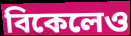
বিকেলেও